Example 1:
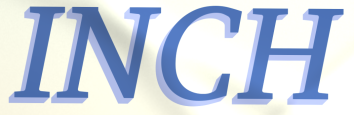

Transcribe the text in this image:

INCH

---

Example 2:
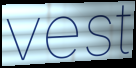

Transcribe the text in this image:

vest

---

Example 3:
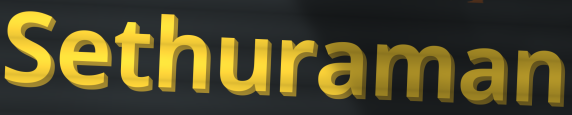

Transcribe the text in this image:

Sethuraman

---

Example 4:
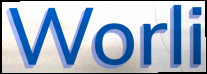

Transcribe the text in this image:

Worli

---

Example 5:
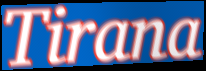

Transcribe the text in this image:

Tirana